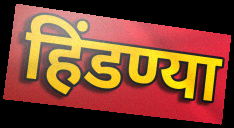
हिंडण्या